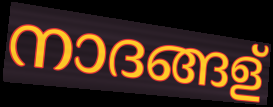
നാദങ്ങള്